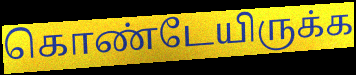
கொண்டேயிருக்க